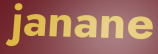
janane